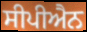
ਸੀਪੀਐਨ